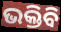
ଭକ୍ତିବି